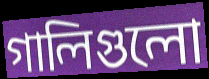
গালিগুলো